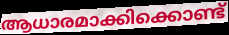
ആധാരമാക്കിക്കൊണ്ട്